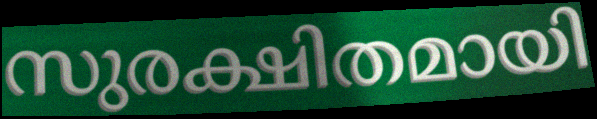
സുരക്ഷിതമായി